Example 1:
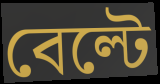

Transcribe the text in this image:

বেল্টে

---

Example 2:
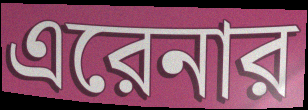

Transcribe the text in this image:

এরেনার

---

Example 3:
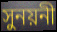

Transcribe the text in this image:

সুনয়নী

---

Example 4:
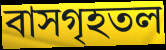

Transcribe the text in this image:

বাসগৃহতল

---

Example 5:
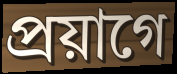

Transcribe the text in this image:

প্রয়াগে